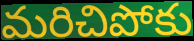
మరిచిపోకు